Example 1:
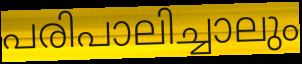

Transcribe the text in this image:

പരിപാലിച്ചാലും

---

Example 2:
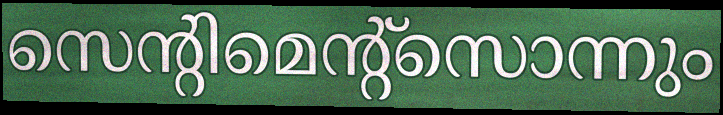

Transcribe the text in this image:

സെന്റിമെന്റ്സൊന്നും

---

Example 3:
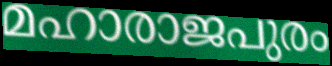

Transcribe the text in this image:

മഹാരാജപുരം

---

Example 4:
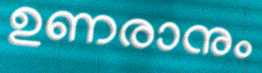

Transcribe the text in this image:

ഉണരാനും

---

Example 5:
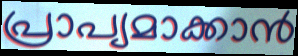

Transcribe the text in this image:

പ്രാപ്യമാക്കാൻ